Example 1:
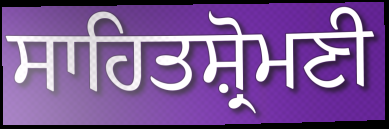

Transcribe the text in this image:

ਸਾਹਿਤਸ਼੍ਰੋਮਣੀ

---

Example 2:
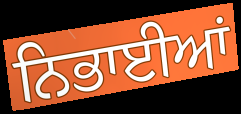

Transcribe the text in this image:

ਨਿਭਾਈਆਂ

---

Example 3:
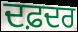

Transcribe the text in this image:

ਦਫ਼ਦਰ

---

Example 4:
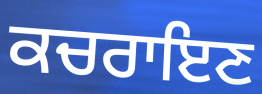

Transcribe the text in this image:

ਕਚਰਾਇਣ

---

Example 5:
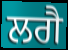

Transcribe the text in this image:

ਲਗੈ